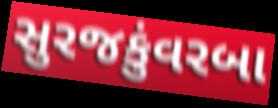
સુરજકુંવરબા